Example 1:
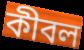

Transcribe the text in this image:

কীবল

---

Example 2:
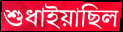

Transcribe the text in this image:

শুধাইয়াছিল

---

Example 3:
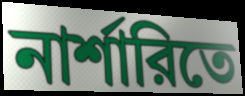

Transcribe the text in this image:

নার্শারিতে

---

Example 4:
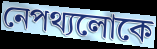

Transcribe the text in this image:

নেপথ্যলোকে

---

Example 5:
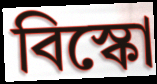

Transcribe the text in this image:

বিস্কো